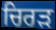
ਚਿਰੜ